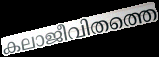
കലാജീവിതത്തെ